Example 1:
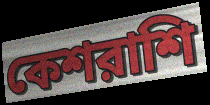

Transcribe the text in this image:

কেশরাশি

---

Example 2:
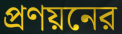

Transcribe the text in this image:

প্রণয়নের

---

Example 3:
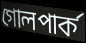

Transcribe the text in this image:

গোলপার্ক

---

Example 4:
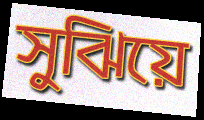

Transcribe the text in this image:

সুঝিয়ে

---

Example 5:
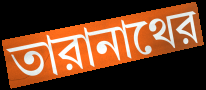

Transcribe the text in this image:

তারানাথের